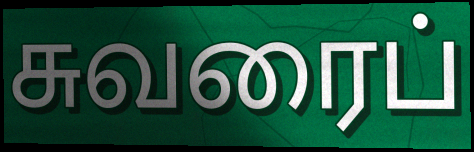
சுவரைப்